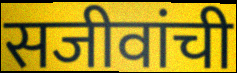
सजीवांची